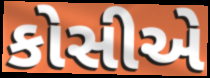
કોસીએ